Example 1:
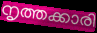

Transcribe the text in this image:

നൃത്തക്കാരി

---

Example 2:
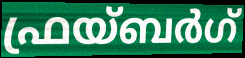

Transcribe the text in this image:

ഫ്രയ്ബർഗ്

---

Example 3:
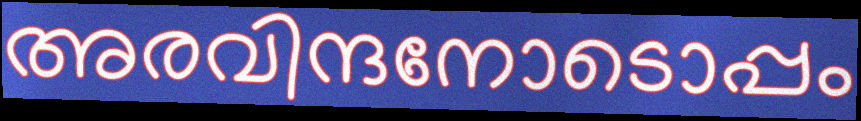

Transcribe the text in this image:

അരവിന്ദനോടൊപ്പം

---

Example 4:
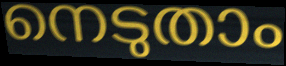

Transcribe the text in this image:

നെടുതാം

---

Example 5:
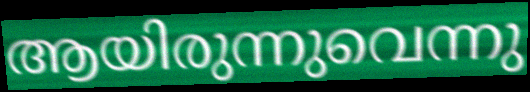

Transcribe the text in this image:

ആയിരുന്നുവെന്നു